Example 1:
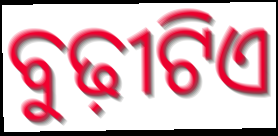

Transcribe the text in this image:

ବୁଢ଼ୀଟିଏ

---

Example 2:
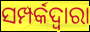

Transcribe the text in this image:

ସମ୍ପର୍କଦ୍ୱାରା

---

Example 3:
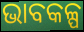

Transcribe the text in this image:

ଭାବକଳ୍ପ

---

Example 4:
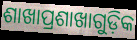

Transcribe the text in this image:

ଶାଖାପ୍ରଶାଖାଗୁଡ଼ିକ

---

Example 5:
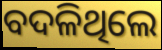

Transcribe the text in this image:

ବଦଳିଥିଲେ